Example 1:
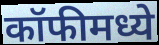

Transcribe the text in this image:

कॉफीमध्ये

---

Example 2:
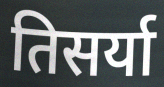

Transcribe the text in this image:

तिसर्या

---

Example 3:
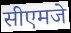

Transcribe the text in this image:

सीएमजे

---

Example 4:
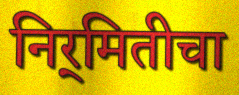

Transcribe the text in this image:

निर्मितीचा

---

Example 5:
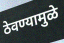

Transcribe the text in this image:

ठेवण्यामुळे